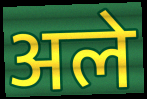
अले